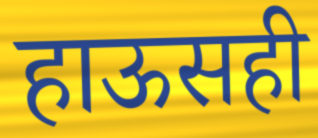
हाऊसही